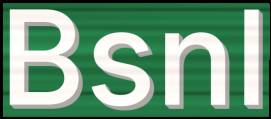
Bsnl